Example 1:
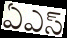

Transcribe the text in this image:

ఏఎస్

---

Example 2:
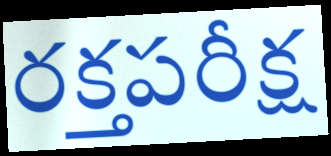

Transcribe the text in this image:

రక్తపరీక్ష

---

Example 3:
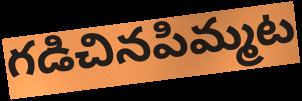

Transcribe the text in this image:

గడిచినపిమ్మట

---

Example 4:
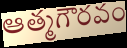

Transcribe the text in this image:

ఆత్మగౌరవం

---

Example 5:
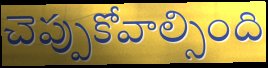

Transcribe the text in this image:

చెప్పుకోవాల్సింది